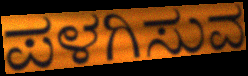
ಪಳಗಿಸುವ